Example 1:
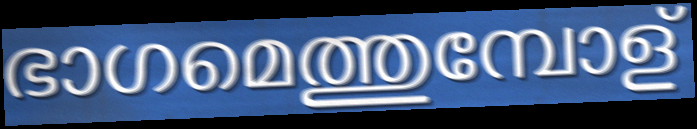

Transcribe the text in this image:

ഭാഗമെത്തുമ്പോള്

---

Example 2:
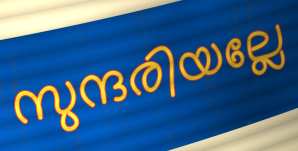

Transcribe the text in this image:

സുന്ദരിയല്ലേ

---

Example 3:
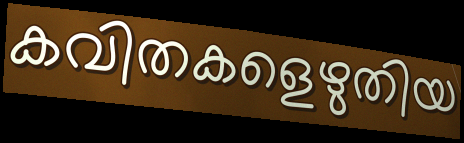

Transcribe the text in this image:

കവിതകളെഴുതിയ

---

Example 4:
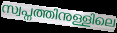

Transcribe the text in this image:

സ്വപ്നത്തിനുള്ളിലെ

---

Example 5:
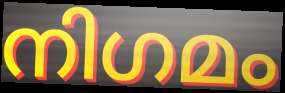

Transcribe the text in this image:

നിഗമം